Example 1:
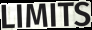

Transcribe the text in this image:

LIMITS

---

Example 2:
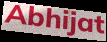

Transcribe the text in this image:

Abhijat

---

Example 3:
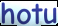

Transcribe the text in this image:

hotu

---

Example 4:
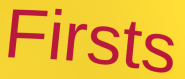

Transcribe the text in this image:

Firsts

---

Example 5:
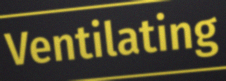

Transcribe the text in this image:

Ventilating